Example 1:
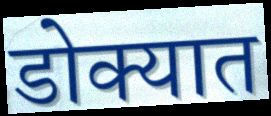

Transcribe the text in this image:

डोक्यात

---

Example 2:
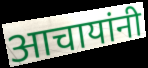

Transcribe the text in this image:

आचायांनी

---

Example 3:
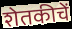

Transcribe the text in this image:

शेतकीचें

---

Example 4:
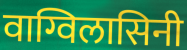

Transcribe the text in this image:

वाग्विलासिनी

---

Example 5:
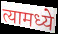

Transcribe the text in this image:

त्यामध्ये